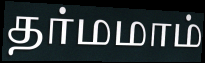
தர்மமாம்